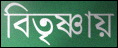
বিতৃষ্ণায়